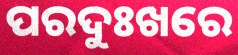
ପରଦୁଃଖରେ